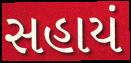
સહાયં